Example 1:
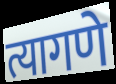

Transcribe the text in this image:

त्यागणे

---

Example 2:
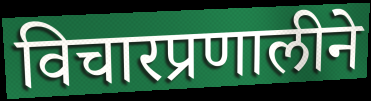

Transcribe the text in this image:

विचारप्रणालीने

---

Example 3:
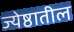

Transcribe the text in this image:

ज्येष्ठातील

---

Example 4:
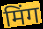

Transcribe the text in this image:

मिंग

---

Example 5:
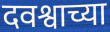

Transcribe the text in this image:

दवश्वाच्या